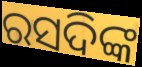
ରସଦିଙ୍କ